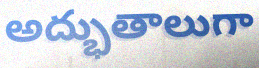
అద్భుతాలుగా